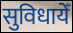
सुविधायेँ